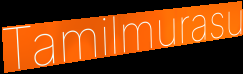
Tamilmurasu